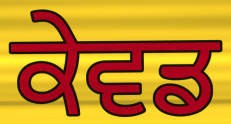
ਕੇਵਡ